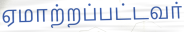
ஏமாற்றப்பட்டவர்